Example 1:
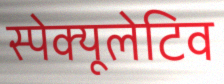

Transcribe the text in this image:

स्पेक्यूलेटिव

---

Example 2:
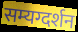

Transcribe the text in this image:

सम्‍यग्‍दर्शन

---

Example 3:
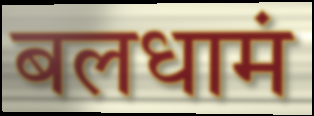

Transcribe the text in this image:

बलधामं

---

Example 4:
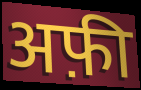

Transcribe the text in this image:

अफ़ी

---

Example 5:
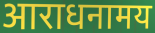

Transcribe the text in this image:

आराधनामय